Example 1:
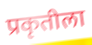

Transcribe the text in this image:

प्रकृतीला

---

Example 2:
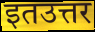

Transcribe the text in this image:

इतउत्तर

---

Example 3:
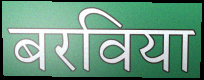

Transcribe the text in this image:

बरविया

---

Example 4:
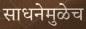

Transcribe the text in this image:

साधनेमुळेच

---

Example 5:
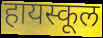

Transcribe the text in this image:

हायस्कूल